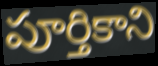
పూర్తికాని